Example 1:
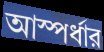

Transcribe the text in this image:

আস্পর্ধার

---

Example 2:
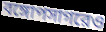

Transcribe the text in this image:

বঙ্গোপসাগরেও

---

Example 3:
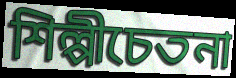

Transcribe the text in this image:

শিল্পীচেতনা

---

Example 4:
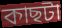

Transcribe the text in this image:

কাছটা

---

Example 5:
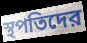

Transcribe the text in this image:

স্থপতিদের